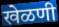
खेळणी